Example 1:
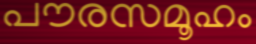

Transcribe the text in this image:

പൗരസമൂഹം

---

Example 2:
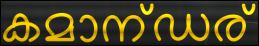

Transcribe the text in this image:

കമാന്ഡര്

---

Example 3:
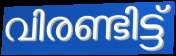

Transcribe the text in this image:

വിരണ്ടിട്ട്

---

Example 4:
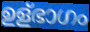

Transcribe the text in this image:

ഉള്ഭാഗം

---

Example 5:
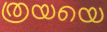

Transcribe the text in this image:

ത്രയയെ